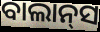
ବାଲାନ୍‌ସ